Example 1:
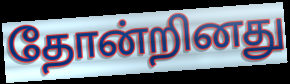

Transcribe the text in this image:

தோன்றினது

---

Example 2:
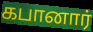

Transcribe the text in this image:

கபானார்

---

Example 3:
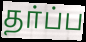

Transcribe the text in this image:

தர்ப்ப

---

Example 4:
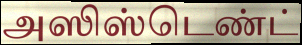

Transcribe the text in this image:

அஸிஸ்டெண்ட்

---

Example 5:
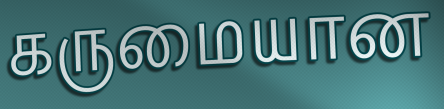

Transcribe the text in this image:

கருமையான